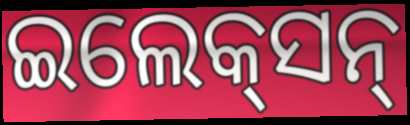
ଇଲେକ୍‌ସନ୍